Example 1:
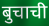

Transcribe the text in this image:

बुचाची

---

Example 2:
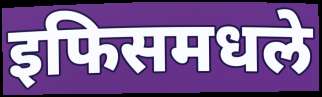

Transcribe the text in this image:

इफिसमधले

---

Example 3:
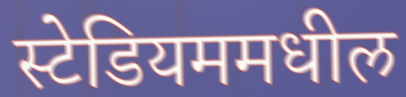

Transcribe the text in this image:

स्टेडियममधील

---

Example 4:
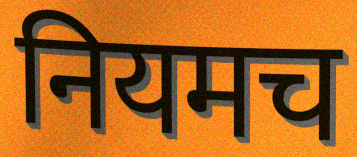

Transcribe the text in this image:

नियमच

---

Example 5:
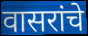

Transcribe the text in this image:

वासरांचे